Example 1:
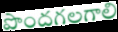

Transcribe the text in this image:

పొందగలగాలి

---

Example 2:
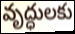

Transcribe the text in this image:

వృద్ధులకు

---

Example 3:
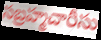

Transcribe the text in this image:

సబ్రహ్మచారీసు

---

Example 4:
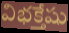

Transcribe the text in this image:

విభక్తేషు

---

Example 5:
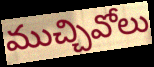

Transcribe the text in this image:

ముచ్చివోలు